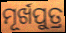
ମୂର୍ଖପୁତ୍ର